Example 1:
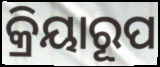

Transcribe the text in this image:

କ୍ରିୟାରୂପ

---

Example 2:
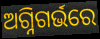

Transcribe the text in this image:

ଅଗ୍ନିଗର୍ଭରେ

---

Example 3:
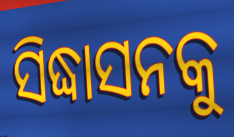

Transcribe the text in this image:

ସିଦ୍ଧାସନକୁ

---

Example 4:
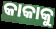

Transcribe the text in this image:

କାକାକୁ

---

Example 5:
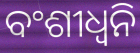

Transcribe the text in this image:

ବଂଶୀଧ୍ବନି